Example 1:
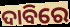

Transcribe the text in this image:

ଦାବିରେ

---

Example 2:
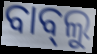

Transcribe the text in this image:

ବାବ୍‍ଲୁ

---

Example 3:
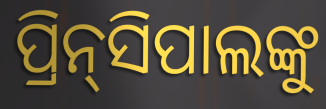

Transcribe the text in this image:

ପ୍ରିନ୍‌ସିପାଲଙ୍କୁ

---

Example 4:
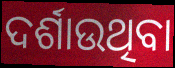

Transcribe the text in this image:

ଦର୍ଶାଉଥିବା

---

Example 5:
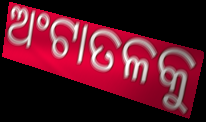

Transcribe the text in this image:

ଅଂଟାତଳକୁ